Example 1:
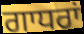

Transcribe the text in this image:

ਗਾਧਰਾਂ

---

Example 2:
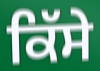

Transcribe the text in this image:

ਕਿੱਸੇ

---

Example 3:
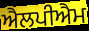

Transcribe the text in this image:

ਐਲਪੀਐਮ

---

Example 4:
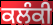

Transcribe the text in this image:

ਕਲੰਕੀ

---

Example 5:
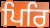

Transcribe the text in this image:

ਪਿਰਿ